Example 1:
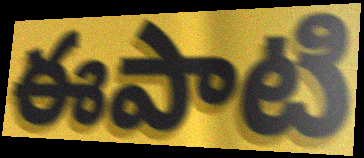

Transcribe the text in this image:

ఈపాటి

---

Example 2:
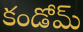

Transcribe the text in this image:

కండోమ్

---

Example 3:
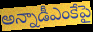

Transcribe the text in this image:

అన్నాడీఎంకేపై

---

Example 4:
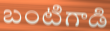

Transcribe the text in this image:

బంటిగాడి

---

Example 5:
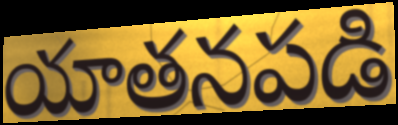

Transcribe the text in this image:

యాతనపడి